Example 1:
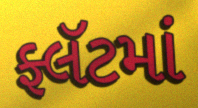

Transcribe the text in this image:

ફ્લૅટમાં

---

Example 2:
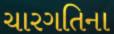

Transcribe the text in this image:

ચારગતિના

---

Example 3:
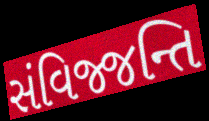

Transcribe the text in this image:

સંવિજ્જન્તિ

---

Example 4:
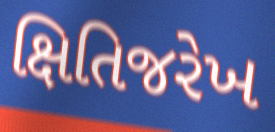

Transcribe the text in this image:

ક્ષિતિજરેખ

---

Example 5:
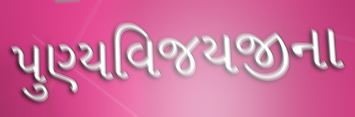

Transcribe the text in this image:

પુણ્યવિજયજીના